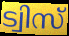
ട്വിസ്